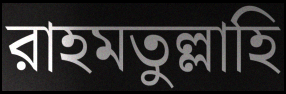
রাহমতুল্লাহি